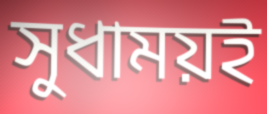
সুধাময়ই